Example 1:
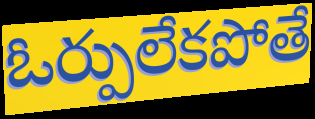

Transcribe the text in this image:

ఓర్పులేకపోతే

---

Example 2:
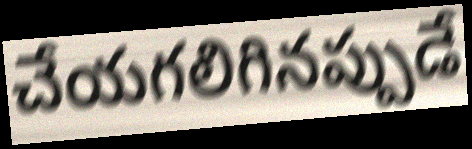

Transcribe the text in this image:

చేయగలిగినప్పుడే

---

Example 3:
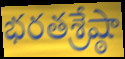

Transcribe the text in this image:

భరతశ్రేష్ఠా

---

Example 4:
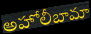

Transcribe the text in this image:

అహోలీబామా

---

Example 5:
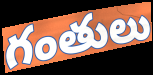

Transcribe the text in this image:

గంతులు